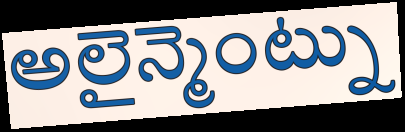
అలైన్మెంట్ను